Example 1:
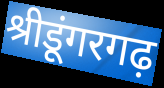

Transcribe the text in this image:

श्रीडूंगरगढ़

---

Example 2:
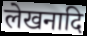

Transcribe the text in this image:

लेखनादि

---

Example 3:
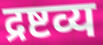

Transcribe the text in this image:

द्रष्टव्य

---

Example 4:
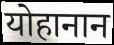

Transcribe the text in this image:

योहानान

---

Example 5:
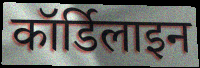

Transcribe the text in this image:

कॉर्डिलाइन